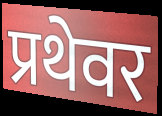
प्रथेवर